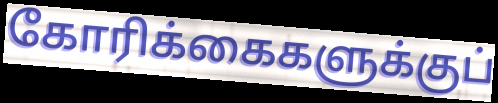
கோரிக்கைகளுக்குப்